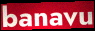
banavu